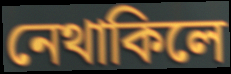
নেথাকিলে